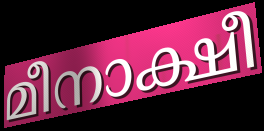
മീനാക്ഷീ